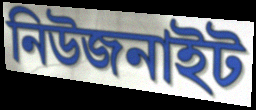
নিউজনাইট